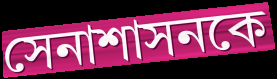
সেনাশাসনকে